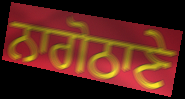
ਨਾਗੋਠਾਣੇ